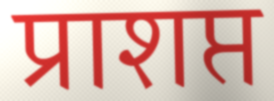
प्राशप्त